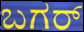
ಬಗರ್